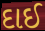
દાઈ